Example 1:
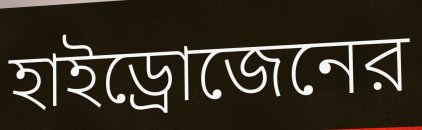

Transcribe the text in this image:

হাইড্রোজেনের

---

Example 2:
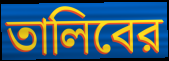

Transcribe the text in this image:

তালিবের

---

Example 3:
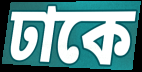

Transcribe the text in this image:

ঢাকে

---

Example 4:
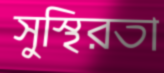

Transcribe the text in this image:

সুস্থিরতা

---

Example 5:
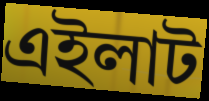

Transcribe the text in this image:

এইলাট